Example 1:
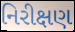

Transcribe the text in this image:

નિરીક્ષણ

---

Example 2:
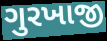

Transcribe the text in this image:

ગુરખાજી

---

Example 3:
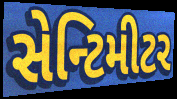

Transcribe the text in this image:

સેન્ટિમીટર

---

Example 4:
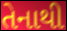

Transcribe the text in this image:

તેનાથી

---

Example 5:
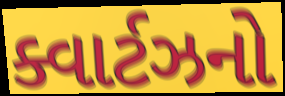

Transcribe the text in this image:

ક્વાર્ટઝનો